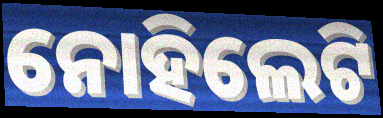
ନୋହିଲେଟି